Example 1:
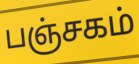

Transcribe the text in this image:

பஞ்சகம்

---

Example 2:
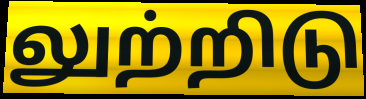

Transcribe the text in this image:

லுற்றிடு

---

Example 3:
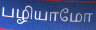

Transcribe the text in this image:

பழியாமோ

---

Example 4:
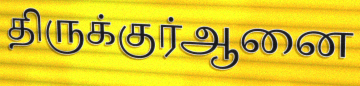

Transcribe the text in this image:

திருக்குர்ஆனை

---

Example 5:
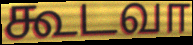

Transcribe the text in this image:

கூடவா